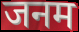
जनम